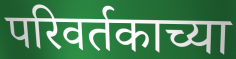
परिवर्तकाच्या